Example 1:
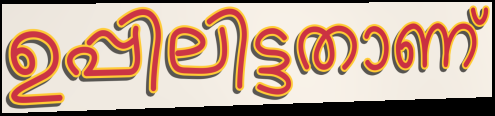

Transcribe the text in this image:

ഉപ്പിലിട്ടതാണ്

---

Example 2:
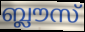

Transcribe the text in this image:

ബ്ലൗസ്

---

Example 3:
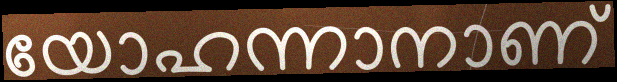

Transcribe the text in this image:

യോഹന്നാനാണ്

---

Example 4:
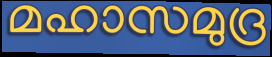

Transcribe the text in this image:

മഹാസമുദ്ര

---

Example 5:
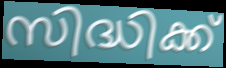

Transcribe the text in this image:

സിദ്ധിക്ക്